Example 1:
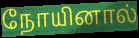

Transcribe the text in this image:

நோயினால்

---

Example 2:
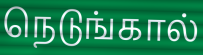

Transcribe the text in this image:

நெடுங்கால்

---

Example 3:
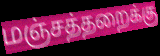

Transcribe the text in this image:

மஞ்சத்தறைக்கு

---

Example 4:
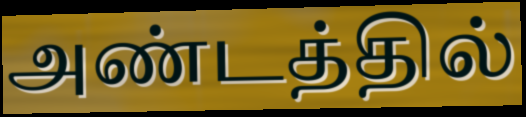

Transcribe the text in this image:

அண்டத்தில்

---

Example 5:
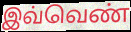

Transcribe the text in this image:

இவ்வெண்